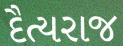
દૈત્યરાજ